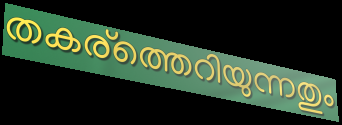
തകര്ത്തെറിയുന്നതും